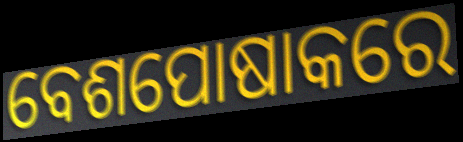
ବେଶପୋଷାକରେ